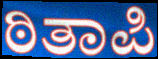
ಠಿತಾಪಿ